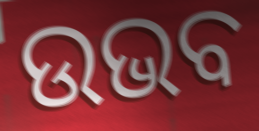
ଉଭବ